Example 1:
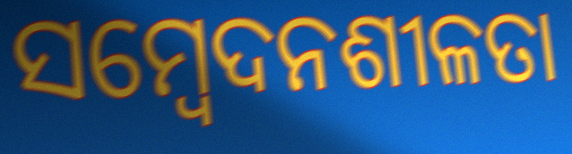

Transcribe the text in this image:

ସମ୍ଵେଦନଶୀଳତା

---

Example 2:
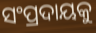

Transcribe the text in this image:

ସଂପ୍ରଦାୟକୁ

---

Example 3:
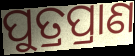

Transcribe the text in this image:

ପୁତ୍ରପ୍ରାଣ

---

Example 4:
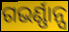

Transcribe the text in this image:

ଗଭର୍ଣ୍ଣାନ୍ସ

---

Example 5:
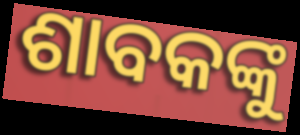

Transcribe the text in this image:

ଶାବକଙ୍କୁ